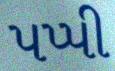
પપ્પી